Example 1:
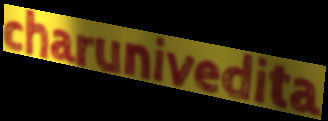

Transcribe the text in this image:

charunivedita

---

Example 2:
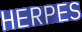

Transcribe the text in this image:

HERPES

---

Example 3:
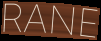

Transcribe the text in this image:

RANE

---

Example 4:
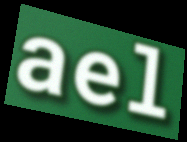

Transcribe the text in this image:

ael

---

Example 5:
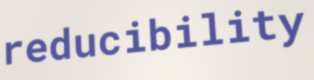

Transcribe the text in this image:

reducibility